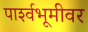
पार्श्‍वभूमीवर